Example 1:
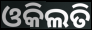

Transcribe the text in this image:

ଓକିଲତି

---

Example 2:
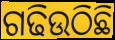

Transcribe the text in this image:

ଗଢିଉଠିଛି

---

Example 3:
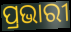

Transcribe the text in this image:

ପ୍ରଭାରୀ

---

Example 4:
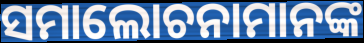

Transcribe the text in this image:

ସମାଲୋଚନାମାନଙ୍କ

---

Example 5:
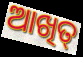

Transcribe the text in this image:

ଆଖିତ୍